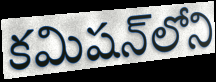
కమిషన్‌లోని